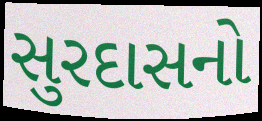
સુરદાસનો